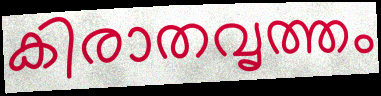
കിരാതവൃത്തം